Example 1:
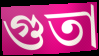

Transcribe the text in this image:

গুতা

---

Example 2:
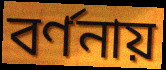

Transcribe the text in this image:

বর্ণনায়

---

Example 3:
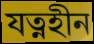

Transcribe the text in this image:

যত্নহীন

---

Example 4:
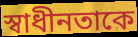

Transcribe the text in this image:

স্বাধীনতাকে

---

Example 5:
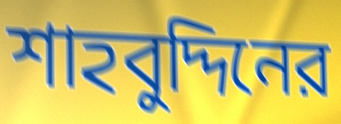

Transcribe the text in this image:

শাহবুদ্দিনের